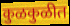
कुळकुळीत